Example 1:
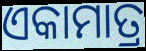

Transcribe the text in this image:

ଏକାମାତ୍ର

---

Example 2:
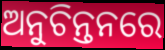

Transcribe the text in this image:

ଅନୁଚିନ୍ତନରେ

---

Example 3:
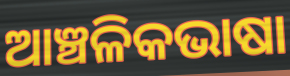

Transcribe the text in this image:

ଆଞ୍ଚଳିକଭାଷା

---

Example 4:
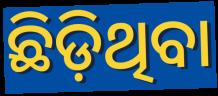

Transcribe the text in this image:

ଛିଡ଼ିଥିବା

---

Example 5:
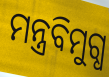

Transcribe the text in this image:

ମନ୍ତ୍ରବିମୁଗ୍ଧ